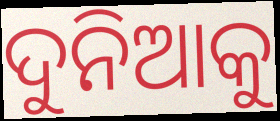
ଦୁନିଆକୁ